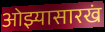
ओझ्यासारखं